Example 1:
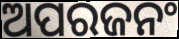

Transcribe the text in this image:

ଅପରଜନଂ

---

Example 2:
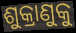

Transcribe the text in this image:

ଶୁକ୍ରାଣୁକୁ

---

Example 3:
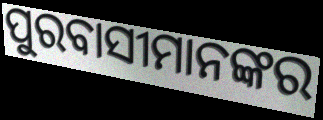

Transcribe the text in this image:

ପୁରବାସୀମାନଙ୍କର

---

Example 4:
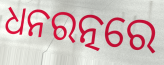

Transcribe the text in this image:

ଧନରତ୍ନରେ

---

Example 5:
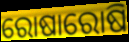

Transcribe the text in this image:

ରୋଷାରୋଷି